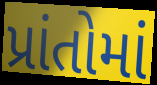
પ્રાંતોમાં